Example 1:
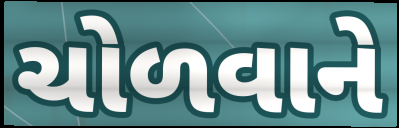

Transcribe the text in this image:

ચોળવાને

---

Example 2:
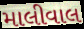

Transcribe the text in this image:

માલીવાલ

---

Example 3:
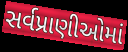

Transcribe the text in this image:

સર્વપ્રાણીઓમાં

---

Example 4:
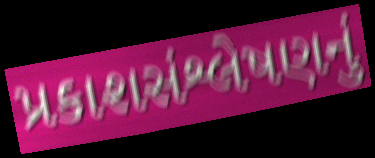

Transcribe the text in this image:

પ્રકાશસંશ્લેષણનું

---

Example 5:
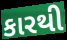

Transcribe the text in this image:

કારથી